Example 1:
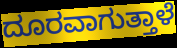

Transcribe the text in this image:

ದೂರವಾಗುತ್ತಾಳೆ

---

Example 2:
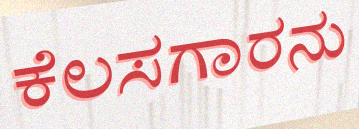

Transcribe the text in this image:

ಕೆಲಸಗಾರನು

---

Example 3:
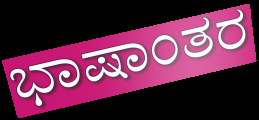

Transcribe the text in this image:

ಭಾಷಾಂತರ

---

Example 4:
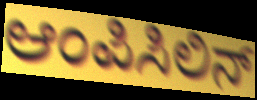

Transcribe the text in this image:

ಆಂಪಿಸಿಲಿನ್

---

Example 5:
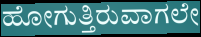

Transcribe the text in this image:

ಹೋಗುತ್ತಿರುವಾಗಲೇ